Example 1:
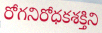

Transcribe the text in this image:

రోగనిరోధకశక్తిని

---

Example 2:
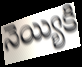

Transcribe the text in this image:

నెయ్యికి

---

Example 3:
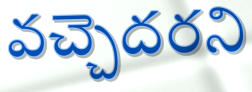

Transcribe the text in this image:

వచ్చెదరని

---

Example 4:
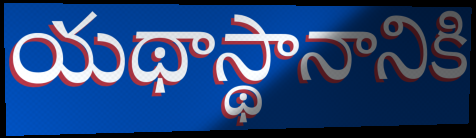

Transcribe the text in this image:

యథాస్థానానికి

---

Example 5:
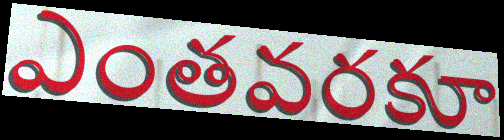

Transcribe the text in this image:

ఎంతవరకూ